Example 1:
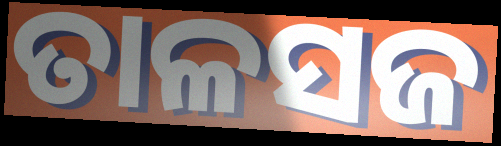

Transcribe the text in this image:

ତାଳସଜ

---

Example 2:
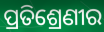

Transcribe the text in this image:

ପ୍ରତିଶ୍ରେଣୀର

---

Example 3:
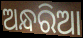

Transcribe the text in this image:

ଅନ୍ଧରିଆ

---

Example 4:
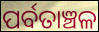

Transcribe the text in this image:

ପର୍ବତାଞ୍ଚଳ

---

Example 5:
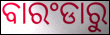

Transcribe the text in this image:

ବାରଂଡାରୁ